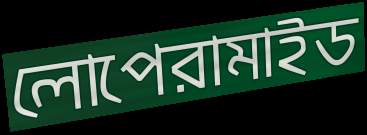
লোপেরামাইড